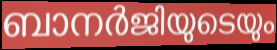
ബാനർജിയുടെയും